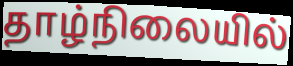
தாழ்நிலையில்